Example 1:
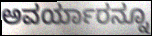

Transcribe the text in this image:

ಅವರ್ಯಾರನ್ನೂ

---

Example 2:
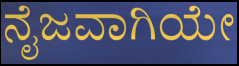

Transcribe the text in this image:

ನೈಜವಾಗಿಯೇ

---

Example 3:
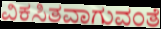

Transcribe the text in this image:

ವಿಕಸಿತವಾಗುವಂತೆ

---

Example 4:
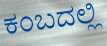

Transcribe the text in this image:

ಕಂಬದಲ್ಲಿ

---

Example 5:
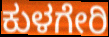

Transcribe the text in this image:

ಕುಳಗೇರಿ